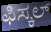
ಫಿಸ್ಕಲ್